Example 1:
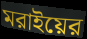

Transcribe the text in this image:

মরাইয়ের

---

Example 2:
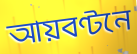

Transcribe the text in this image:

আয়বণ্টনে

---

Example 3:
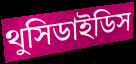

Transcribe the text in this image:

থুসিডাইডিস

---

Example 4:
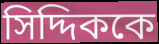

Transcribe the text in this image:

সিদ্দিককে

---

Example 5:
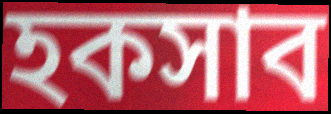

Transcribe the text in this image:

হকসাব